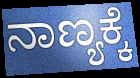
ನಾಣ್ಯಕ್ಕೆ